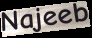
Najeeb